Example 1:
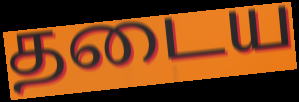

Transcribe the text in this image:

தடைய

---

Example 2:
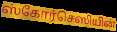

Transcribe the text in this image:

ஸ்கோர்செஸியின்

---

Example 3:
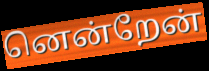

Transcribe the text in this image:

னென்றேன்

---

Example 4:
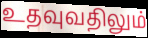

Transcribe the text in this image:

உதவுவதிலும்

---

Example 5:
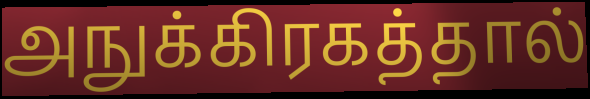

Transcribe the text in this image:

அநுக்கிரகத்தால்